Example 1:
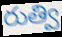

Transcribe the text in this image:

రుత్వి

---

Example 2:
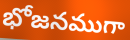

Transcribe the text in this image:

భోజనముగా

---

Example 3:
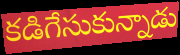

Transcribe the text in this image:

కడిగేసుకున్నాడు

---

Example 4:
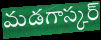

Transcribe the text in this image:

మడగాస్కర్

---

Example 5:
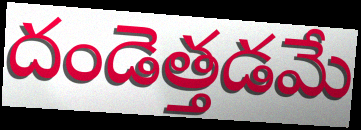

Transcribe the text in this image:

దండెత్తడమే